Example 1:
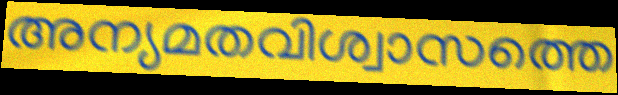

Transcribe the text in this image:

അന്യമതവിശ്വാസത്തെ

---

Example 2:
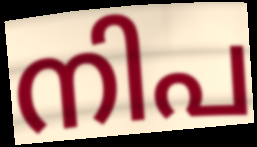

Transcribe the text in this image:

നിപ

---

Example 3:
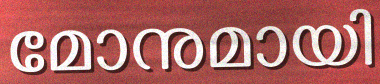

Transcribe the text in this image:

മോനുമായി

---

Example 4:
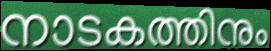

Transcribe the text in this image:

നാടകത്തിനും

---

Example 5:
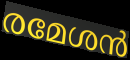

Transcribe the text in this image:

രമേശൻ